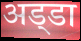
अड्‌डा